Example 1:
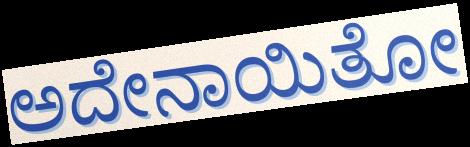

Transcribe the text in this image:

ಅದೇನಾಯಿತೋ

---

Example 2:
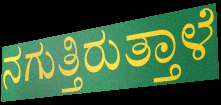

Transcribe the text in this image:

ನಗುತ್ತಿರುತ್ತಾಳೆ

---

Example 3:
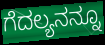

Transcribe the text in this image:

ಗೆದಲ್ಯನನ್ನೂ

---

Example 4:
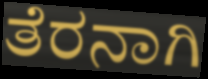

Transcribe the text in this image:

ತೆರನಾಗಿ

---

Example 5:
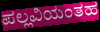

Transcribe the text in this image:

ಪಲ್ಲವಿಯಂತಹ